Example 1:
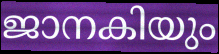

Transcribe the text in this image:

ജാനകിയും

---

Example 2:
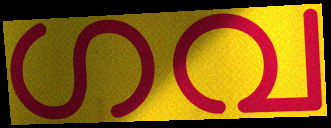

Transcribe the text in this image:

ഗവ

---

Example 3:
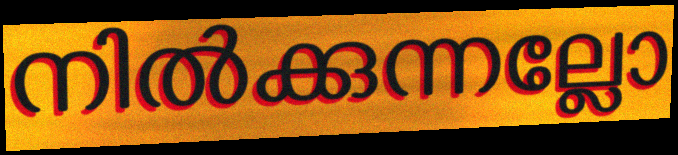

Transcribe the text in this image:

നിൽക്കുന്നല്ലോ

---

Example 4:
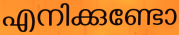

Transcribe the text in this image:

എനിക്കുണ്ടോ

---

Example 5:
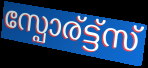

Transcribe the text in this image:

സ്പോര്ട്ട്സ്